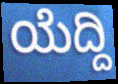
ಯೆದ್ದಿ